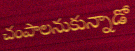
చంపాలనుకున్నాడో